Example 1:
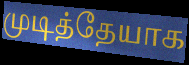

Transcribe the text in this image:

முடித்தேயாக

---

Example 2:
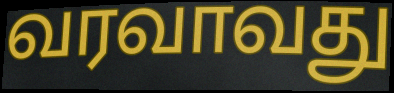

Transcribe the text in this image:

வரவாவது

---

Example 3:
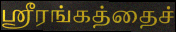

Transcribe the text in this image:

ஸ்ரீரங்கத்தைச்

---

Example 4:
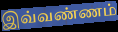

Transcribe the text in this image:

இவ்வண்ணம்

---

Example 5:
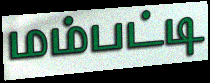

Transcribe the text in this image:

மம்பட்டி